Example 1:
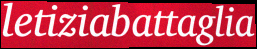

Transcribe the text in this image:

letiziabattaglia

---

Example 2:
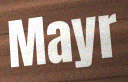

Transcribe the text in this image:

Mayr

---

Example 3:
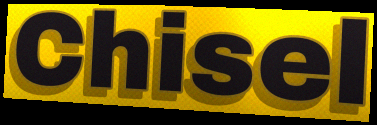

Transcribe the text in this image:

Chisel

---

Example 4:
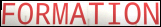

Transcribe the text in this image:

FORMATION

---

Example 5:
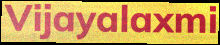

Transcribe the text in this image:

Vijayalaxmi